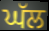
ਘੱਲ